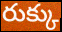
రుక్కు